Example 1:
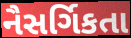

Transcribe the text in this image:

નૈસર્ગિકતા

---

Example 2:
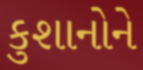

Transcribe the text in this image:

કુશાનોને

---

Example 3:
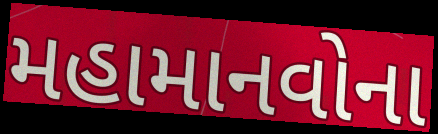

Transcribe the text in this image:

મહામાનવોના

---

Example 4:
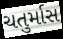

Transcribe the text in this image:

ચતુર્માસ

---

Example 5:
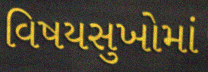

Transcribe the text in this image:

વિષયસુખોમાં